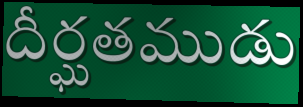
దీర్ఘతముడు